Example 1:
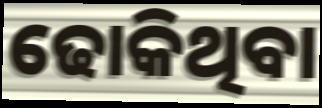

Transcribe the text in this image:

ଢୋକିଥିବା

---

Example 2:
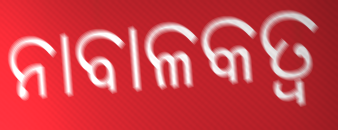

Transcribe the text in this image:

ନାବାଳକତ୍ଵ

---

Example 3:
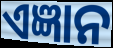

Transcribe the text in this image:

ଏଜ୍ଞାନ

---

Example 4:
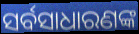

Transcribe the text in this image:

ସର୍ବସାଧାରଣଙ୍କ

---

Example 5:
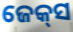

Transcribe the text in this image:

ଜେକ୍‍ସ